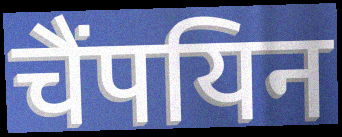
चैंपयिन